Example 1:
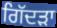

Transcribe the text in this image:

ਗਿੱਦੜਾ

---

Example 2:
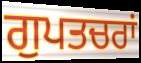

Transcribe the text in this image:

ਗੁਪਤਚਰਾਂ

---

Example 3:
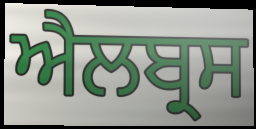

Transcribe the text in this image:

ਐਲਬ੍ਰਸ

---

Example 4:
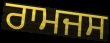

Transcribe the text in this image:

ਰਾਮਜਸ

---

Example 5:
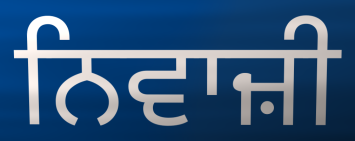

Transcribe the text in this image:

ਨਿਵਾਜ਼ੀ